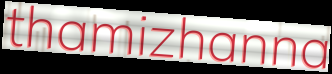
thamizhanna